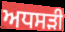
ਅਧਸੜੀ